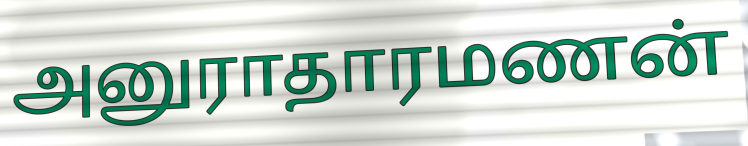
அனுராதாரமணன்